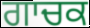
ਗਾਚਕ